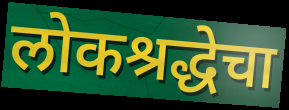
लोकश्रद्धेचा